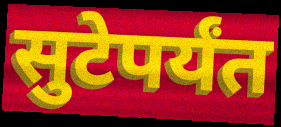
सुटेपर्यंत